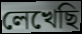
লেখেছি